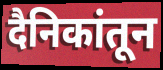
दैनिकांतून